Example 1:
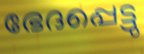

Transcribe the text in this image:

ഭേദപ്പെട്ടു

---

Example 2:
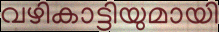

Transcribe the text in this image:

വഴികാട്ടിയുമായി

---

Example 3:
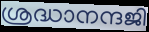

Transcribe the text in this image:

ശ്രദ്ധാനന്ദജി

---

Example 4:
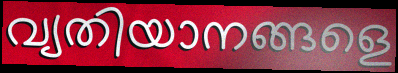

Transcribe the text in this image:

വ്യതിയാനങ്ങളെ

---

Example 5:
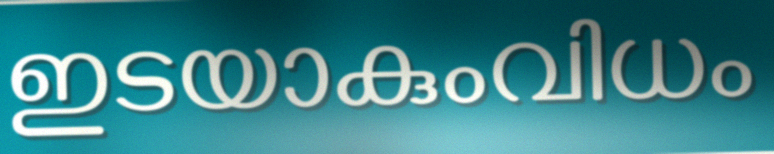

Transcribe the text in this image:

ഇടയാകുംവിധം